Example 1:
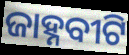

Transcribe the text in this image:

ଜାହ୍ନବୀଟି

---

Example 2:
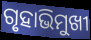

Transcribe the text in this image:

ଗୃହାଭିମୁଖୀ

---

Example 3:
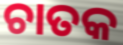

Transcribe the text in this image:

ଚାତକ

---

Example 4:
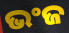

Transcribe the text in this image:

ଭଂଜ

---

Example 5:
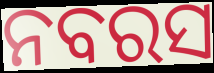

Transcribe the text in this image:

ନବରସ